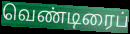
வெண்டிரைப்